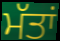
ਮੱਤਾਂ